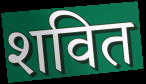
शवित